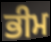
ਭੀਮ